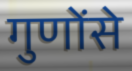
गुणोंसे